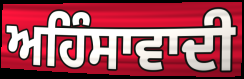
ਅਹਿੰਸਾਵਾਦੀ